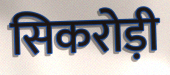
सिकरोड़ी